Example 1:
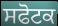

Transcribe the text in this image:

ਸਫੋਟਕ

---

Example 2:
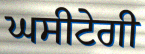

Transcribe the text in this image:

ਘਸੀਟੇਗੀ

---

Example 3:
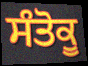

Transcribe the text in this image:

ਸੰਤੋਕੂ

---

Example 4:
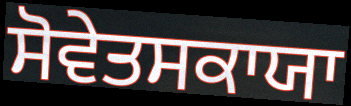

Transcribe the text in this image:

ਸੋਵੇਤਸਕਾਯਾ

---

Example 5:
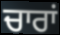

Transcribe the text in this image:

ਚਾਰਾਂ